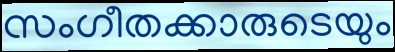
സംഗീതക്കാരുടെയും